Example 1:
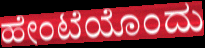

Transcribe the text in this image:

ಹೇಂಟೆಯೊಂದು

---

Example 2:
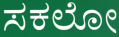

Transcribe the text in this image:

ಸಕಲೋ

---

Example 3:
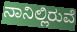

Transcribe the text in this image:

ನಾನಿಲ್ಲಿರುವೆ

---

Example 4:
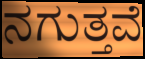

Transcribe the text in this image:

ನಗುತ್ತವೆ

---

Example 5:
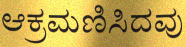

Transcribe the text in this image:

ಆಕ್ರಮಣಿಸಿದವು